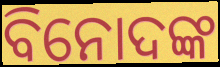
ବିନୋଦଙ୍କ